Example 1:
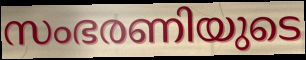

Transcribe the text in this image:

സംഭരണിയുടെ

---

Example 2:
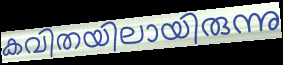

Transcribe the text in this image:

കവിതയിലായിരുന്നു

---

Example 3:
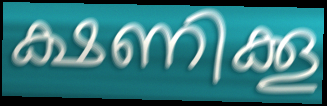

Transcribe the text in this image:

ക്ഷണിക്കൂ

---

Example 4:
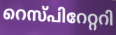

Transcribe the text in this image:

റെസ്പിറേറ്ററി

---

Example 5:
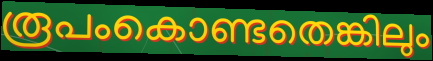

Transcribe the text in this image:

രൂപംകൊണ്ടതെങ്കിലും